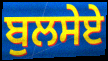
ਬੁਲਸੇਏ